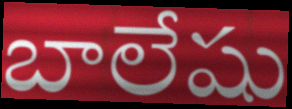
బాలేషు